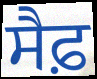
ਸੈਫ਼